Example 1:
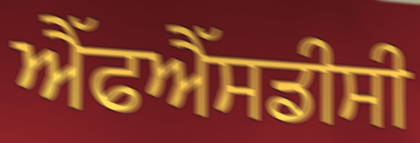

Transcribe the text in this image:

ਐੱਫਐੱਸਡੀਸੀ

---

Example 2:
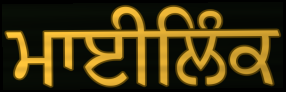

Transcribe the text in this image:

ਮਾਈਲਿੰਕ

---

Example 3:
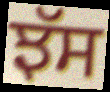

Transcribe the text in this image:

ਝੱਸ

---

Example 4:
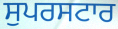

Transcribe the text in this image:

ਸੁਪਰਸਟਾਰ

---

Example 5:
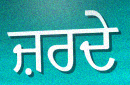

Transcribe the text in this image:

ਜ਼ਰਦੇ